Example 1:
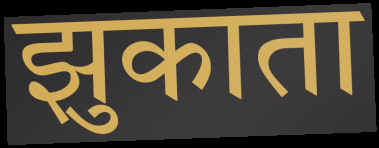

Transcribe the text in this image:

झुकाता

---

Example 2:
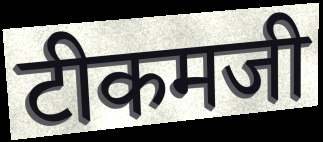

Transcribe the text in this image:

टीकमजी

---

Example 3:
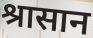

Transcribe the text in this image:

श्रासान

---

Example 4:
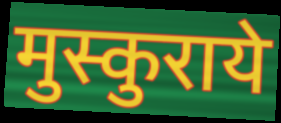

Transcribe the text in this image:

मुस्कुराये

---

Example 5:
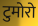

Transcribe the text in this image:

टुमोरो